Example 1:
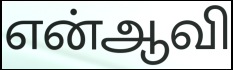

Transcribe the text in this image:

என்ஆவி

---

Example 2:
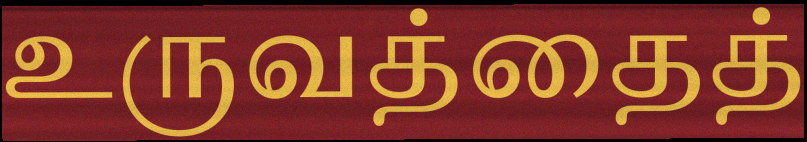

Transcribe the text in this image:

உருவத்தைத்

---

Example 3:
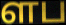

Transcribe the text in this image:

ளப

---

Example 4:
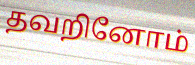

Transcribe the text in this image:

தவறினோம்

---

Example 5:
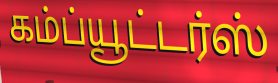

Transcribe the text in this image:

கம்ப்யூட்டர்ஸ்